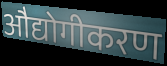
औद्योगीकरण